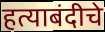
हत्याबंदीचे